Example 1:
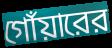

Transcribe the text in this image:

গোঁয়ারের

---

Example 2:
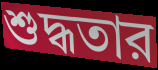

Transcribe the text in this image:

শুদ্ধতার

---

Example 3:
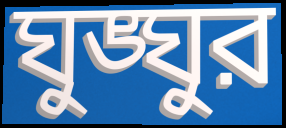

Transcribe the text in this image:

ঘুঙ্ঘুর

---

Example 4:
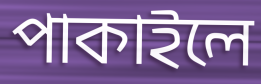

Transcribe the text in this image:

পাকাইলে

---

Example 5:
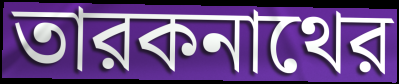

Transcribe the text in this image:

তারকনাথের